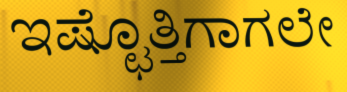
ಇಷ್ಟೊತ್ತಿಗಾಗಲೇ